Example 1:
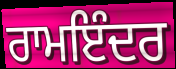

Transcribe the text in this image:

ਰਾਮਇੰਦਰ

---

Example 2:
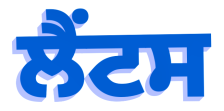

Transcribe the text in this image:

ਲੈਂਟਸ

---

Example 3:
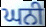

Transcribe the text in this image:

ਘਨੀ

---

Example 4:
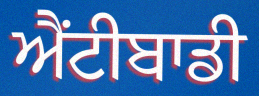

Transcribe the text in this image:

ਐਂਟੀਬਾਡੀ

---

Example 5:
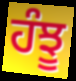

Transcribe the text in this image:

ਹੰਝੂ